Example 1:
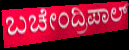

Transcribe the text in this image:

ಬಚೇಂದ್ರಿಪಾಲ್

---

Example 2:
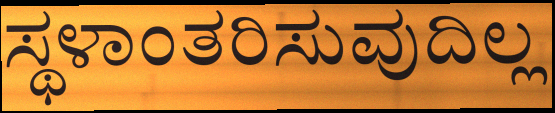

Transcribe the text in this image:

ಸ್ಥಳಾಂತರಿಸುವುದಿಲ್ಲ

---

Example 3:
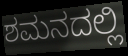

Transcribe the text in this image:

ಶಮನದಲ್ಲಿ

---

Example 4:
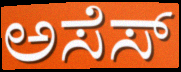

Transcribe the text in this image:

ಅಸೆಸ್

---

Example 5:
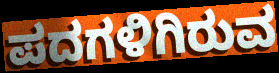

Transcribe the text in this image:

ಪದಗಳಿಗಿರುವ